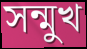
সন্মুখ